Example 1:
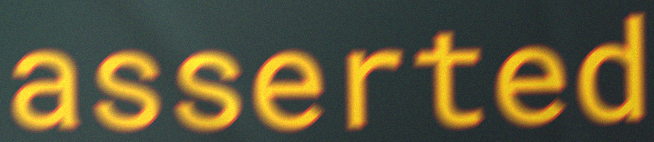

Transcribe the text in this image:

asserted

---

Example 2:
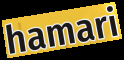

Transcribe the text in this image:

hamari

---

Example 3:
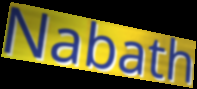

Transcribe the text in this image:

Nabath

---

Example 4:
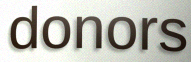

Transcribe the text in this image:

donors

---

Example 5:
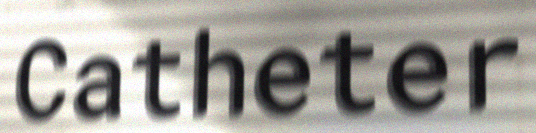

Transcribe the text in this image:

Catheter